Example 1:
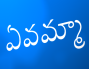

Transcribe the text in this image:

ఏవమ్మా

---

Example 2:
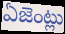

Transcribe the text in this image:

ఏజెంట్లు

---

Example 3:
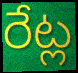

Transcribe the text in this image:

రేట్ల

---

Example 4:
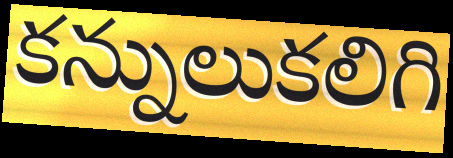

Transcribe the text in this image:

కన్నులుకలిగి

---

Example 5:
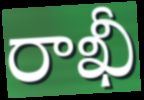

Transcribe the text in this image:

రాఖీ